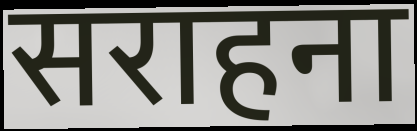
सराहना